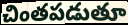
చింతపడుతూ